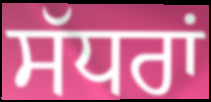
ਸੱਧਰਾਂ